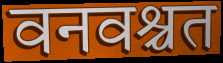
वनवश्चत